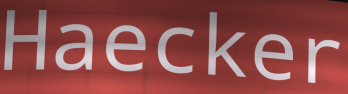
Haecker